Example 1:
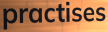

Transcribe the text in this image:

practises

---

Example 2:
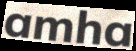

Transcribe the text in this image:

amha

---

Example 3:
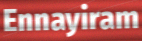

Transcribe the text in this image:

Ennayiram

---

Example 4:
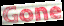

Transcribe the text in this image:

Gone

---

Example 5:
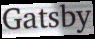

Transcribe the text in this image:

Gatsby